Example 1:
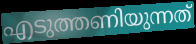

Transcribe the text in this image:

എടുത്തണിയുന്നത്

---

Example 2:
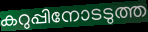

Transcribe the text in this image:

കറുപ്പിനോടടുത്ത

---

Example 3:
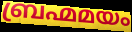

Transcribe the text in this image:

ബ്രഹ്മമയം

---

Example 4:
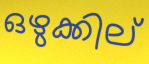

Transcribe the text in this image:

ഒഴുക്കില്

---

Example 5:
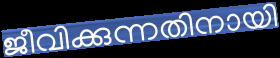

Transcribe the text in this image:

ജീവിക്കുന്നതിനായി